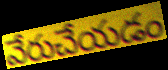
వేరుచేయడం